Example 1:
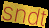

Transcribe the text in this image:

sndt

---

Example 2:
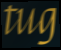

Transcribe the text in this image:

tug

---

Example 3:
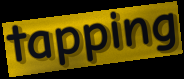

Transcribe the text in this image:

tapping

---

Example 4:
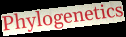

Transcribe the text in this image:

Phylogenetics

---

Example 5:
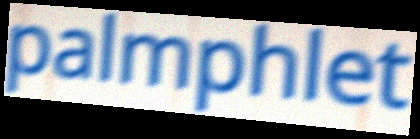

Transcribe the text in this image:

palmphlet